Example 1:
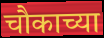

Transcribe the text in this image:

चौकाच्या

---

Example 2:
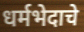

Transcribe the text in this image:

धर्मभेदाचे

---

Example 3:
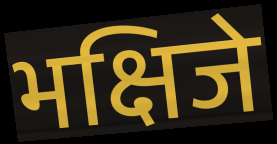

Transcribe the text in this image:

भक्षिजे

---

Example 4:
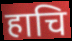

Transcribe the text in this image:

हाचि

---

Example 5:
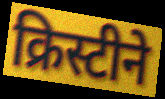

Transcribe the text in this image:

क्रिस्टीने